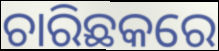
ଚାରିଛକରେ